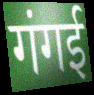
गंगई